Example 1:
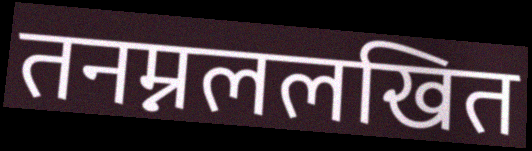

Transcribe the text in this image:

तनम्नललखित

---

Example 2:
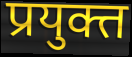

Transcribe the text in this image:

प्रयुक्त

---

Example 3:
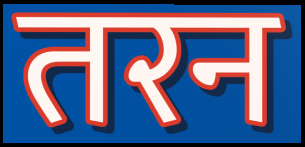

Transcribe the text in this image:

तरन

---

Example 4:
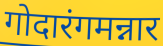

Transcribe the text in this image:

गोदारंगमन्नार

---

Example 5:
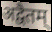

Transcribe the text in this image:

अद्वैतम्